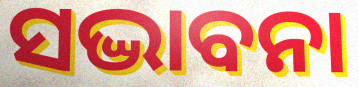
ସଦ୍ଭାବନା